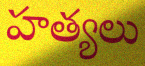
హత్యలు